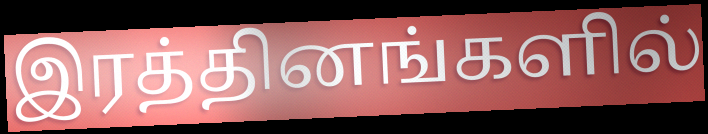
இரத்தினங்களில்